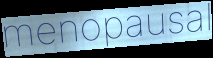
menopausal